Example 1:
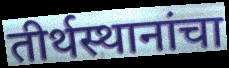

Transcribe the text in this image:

तीर्थस्थानांचा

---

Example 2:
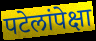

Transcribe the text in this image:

पटेलांपेक्षा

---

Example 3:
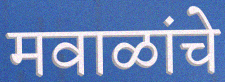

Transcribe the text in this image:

मवाळांचे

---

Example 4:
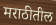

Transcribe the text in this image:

मराठीतील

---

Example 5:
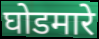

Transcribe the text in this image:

घोडमारे